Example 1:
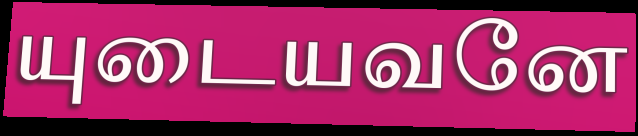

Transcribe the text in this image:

யுடையவனே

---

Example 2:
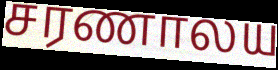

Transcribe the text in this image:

சரணாலய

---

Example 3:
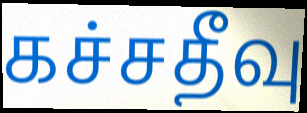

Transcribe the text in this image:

கச்சதீவு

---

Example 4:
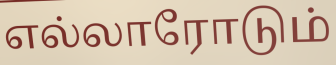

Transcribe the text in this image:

எல்லாரோடும்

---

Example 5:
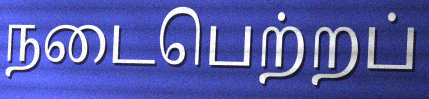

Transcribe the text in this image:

நடைபெற்றப்